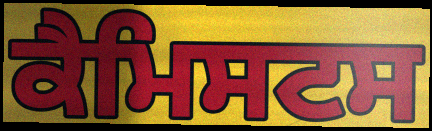
ਕੈਮਿਸਟਸ